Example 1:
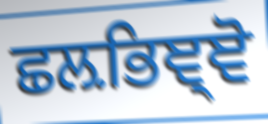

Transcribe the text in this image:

ਛਲ਼ਭਿਞ੍ਞੋ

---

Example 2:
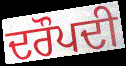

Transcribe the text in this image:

ਦਰੌਪਦੀ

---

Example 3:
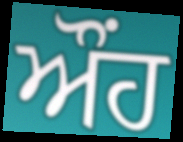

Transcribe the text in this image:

ਔਂਹ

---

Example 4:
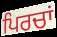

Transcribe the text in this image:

ਪਿਰਚਾਂ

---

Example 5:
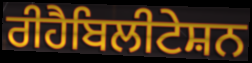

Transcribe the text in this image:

ਰੀਹੈਬਿਲੀਟੇਸ਼ਨ